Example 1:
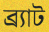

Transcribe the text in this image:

ব্র্যাট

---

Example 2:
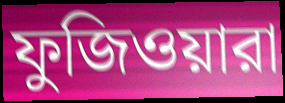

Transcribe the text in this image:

ফুজিওয়ারা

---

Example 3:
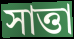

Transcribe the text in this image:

সাত্তা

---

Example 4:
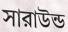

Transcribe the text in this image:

সারাউন্ড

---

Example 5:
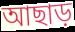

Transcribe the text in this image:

আছাড়